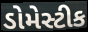
ડોમેસ્ટીક